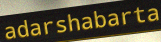
adarshabarta